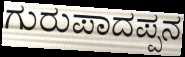
ಗುರುಪಾದಪ್ಪನ